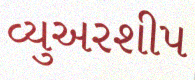
વ્યુઅરશીપ